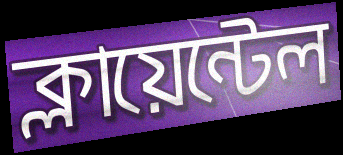
ক্লায়েন্টেল